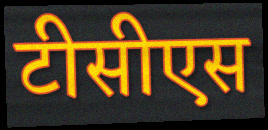
टीसीएस